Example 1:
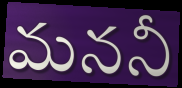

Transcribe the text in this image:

మననీ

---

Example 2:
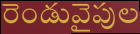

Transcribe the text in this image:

రెండువైపుల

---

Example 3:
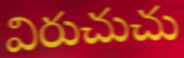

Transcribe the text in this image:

విరుచుచు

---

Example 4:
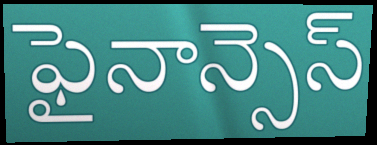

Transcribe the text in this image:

ఫైనాన్సెస్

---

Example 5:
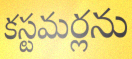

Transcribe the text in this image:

కస్టమర్లను